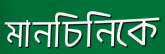
মানচিনিকে